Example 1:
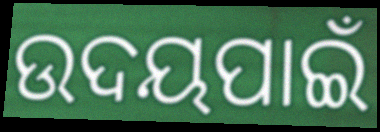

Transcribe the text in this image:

ଉଦୟପାଇଁ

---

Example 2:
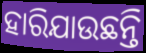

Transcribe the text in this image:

ହାରିଯାଉଛନ୍ତି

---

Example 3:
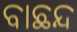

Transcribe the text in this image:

ବାଛନ୍ଦ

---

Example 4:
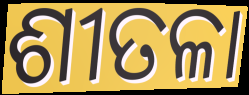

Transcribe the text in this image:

ଶୀତଳା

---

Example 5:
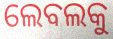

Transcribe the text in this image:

ଲେବଲକୁ